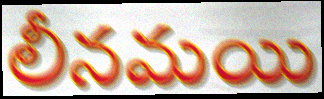
లీనమయి